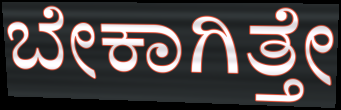
ಬೇಕಾಗಿತ್ತೇ